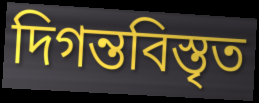
দিগন্তবিস্তৃত